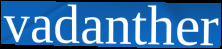
vadanther